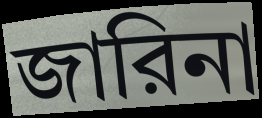
জারিনা